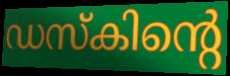
ഡസ്കിന്റെ